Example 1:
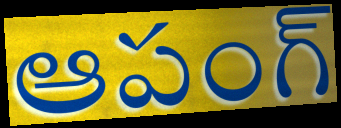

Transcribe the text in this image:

ఆపంగ్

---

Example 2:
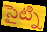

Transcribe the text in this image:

సైట్ని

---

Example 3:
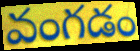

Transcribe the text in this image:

వంగడం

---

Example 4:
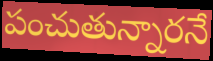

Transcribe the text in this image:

పంచుతున్నారనే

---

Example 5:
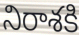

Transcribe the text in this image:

నిరాశకి